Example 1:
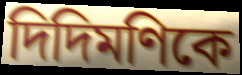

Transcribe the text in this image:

দিদিমণিকে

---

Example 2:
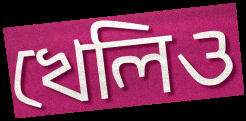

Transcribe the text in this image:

খেলিও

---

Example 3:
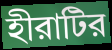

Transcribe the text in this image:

হীরাটির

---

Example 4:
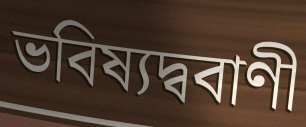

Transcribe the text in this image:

ভবিষ্যদ্ববাণী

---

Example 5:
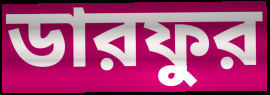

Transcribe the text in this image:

ডারফুর